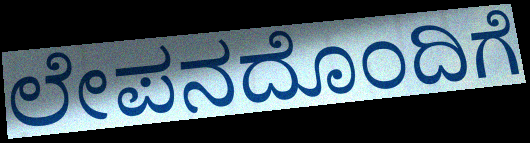
ಲೇಪನದೊಂದಿಗೆ